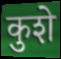
कुशे